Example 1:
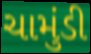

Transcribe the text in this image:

ચામુંડી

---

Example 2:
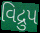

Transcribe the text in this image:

વિદ્રુપ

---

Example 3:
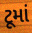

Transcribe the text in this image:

ટૂમાં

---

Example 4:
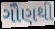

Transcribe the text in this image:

ગૌણથી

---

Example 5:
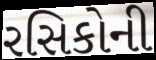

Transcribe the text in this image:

રસિકોની